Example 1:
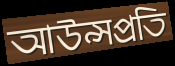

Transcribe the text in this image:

আউন্সপ্রতি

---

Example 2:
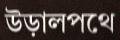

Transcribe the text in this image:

উড়ালপথে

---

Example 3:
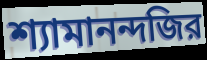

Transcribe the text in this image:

শ্যামানন্দজির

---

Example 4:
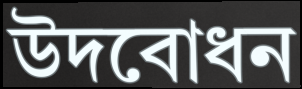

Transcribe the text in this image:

উদবোধন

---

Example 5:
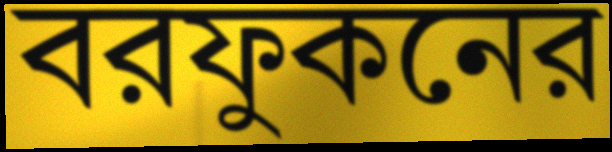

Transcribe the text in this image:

বরফুকনের